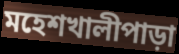
মহেশখালীপাড়া